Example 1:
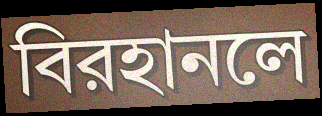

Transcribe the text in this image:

বিরহানলে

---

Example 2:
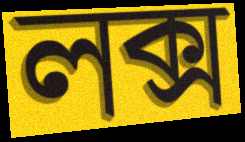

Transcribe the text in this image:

লক্স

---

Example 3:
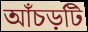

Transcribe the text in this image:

আঁচড়টি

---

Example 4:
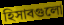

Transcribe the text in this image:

হিসাবগুলো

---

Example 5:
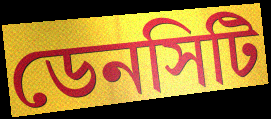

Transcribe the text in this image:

ডেনসিটি